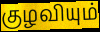
குழவியும்